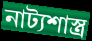
নাট্যশাস্ত্ৰ